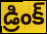
డ్రింక్